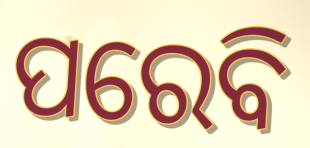
ପରେବି